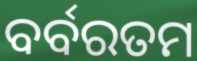
ବର୍ବରତମ